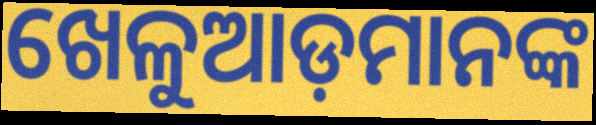
ଖେଳୁଆଡ଼ମାନଙ୍କ